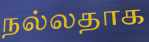
நல்லதாக